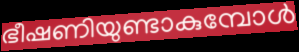
ഭീഷണിയുണ്ടാകുമ്പോൾ